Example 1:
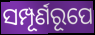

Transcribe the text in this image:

ସମ୍ପୂର୍ଣରୂପେ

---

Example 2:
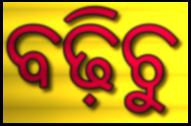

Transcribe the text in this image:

ବଢ଼ିଚୁ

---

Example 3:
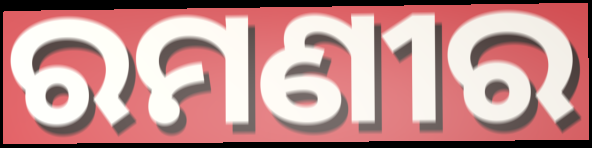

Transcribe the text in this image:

ରମଣୀର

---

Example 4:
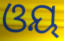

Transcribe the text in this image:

ଓୟ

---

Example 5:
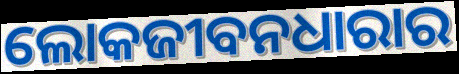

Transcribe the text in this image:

ଲୋକଜୀବନଧାରାର